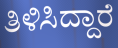
ತಿಳಿಸಿದ್ದಾರೆ